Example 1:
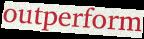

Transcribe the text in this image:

outperform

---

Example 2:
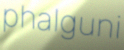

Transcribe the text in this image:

phalguni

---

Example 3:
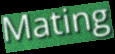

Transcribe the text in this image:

Mating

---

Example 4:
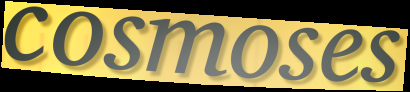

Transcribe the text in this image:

cosmoses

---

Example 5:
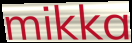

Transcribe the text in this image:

mikka